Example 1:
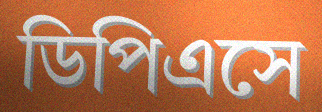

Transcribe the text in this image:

ডিপিএসে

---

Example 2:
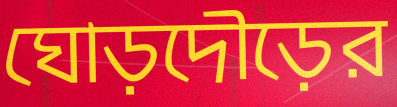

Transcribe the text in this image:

ঘোড়দৌড়ের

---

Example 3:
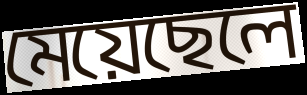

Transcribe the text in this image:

মেয়েছেলে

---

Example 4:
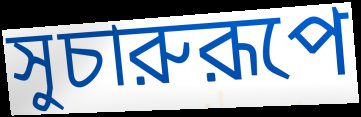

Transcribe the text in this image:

সুচারুরূপে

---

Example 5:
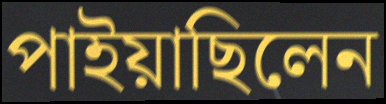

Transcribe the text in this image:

পাইয়াছিলেন